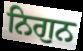
ਨਿਗੁਨ